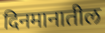
दिनमानातील